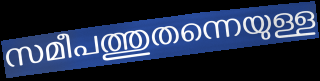
സമീപത്തുതന്നെയുള്ള